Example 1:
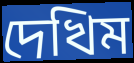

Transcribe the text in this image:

দেখিম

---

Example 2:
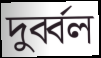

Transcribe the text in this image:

দুৰ্ব্বল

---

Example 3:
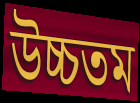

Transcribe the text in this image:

উচ্চতম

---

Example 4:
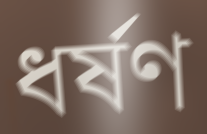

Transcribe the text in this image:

ধৰ্ষণ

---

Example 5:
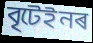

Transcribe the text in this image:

বৃটেইনৰ